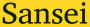
Sansei